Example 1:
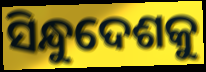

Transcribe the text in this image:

ସିନ୍ଧୁଦେଶକୁ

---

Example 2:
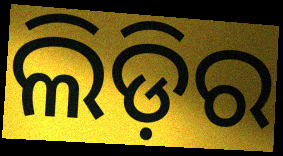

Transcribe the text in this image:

ଲିଡ଼ିର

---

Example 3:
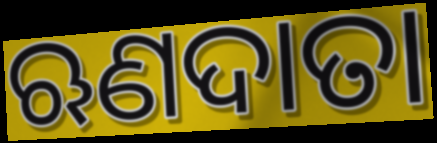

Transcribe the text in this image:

ଋଣଦାତା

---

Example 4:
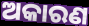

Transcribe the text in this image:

ଅକାରଣ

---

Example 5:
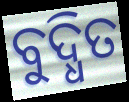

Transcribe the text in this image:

ବୁଦ୍ଧିତ